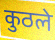
कुठले